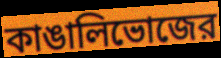
কাঙালিভোজের